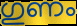
ഗുണം